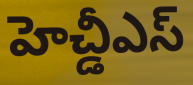
హెచ్డీఎస్